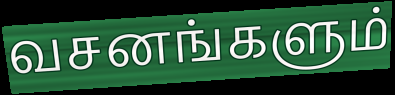
வசனங்களும்